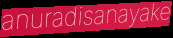
anuradisanayake